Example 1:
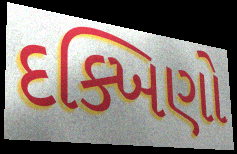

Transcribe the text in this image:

દક્ખિણો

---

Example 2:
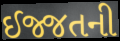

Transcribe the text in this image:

ઈજ્જતની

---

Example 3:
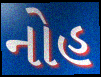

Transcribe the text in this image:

નોહ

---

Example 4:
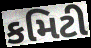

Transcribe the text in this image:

કમિટી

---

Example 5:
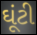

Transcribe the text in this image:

ઘૂંટી